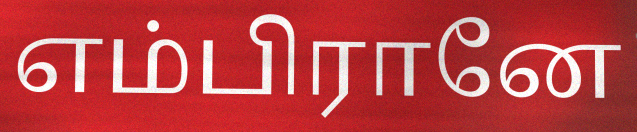
எம்பிரானே